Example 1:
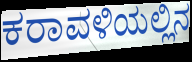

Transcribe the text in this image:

ಕರಾವಳಿಯಲ್ಲಿನ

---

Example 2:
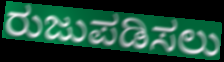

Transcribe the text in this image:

ರುಜುಪಡಿಸಲು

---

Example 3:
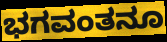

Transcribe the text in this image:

ಭಗವಂತನೂ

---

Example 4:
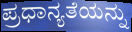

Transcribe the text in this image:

ಪ್ರಧಾನ್ಯತೆಯನ್ನು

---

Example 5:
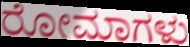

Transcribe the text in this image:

ರೋಮಾಗಳು